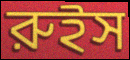
রুইস